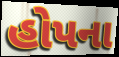
હોપના